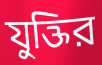
যুক্তির